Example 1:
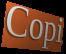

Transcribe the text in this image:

Copi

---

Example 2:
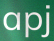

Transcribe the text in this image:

apj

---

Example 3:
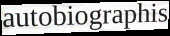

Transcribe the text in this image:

autobiographis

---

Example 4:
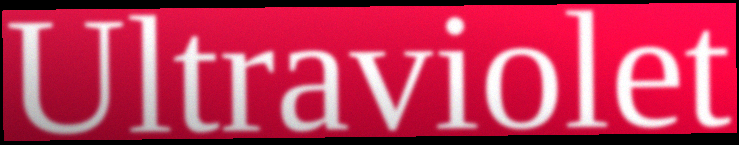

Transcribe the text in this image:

Ultraviolet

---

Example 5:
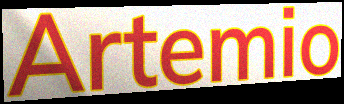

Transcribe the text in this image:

Artemio